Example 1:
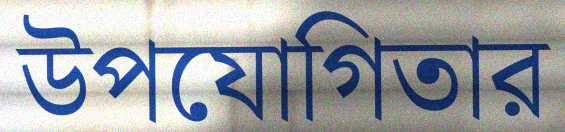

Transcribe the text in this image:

উপযোগিতার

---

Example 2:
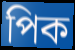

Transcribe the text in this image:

পিক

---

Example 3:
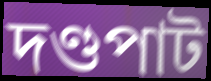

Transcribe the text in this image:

দণ্ডপাট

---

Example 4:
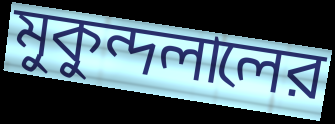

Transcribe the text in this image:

মুকুন্দলালের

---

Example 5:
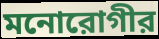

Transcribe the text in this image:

মনোরোগীর